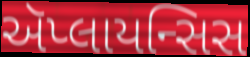
ઍપ્લાયન્સિસ